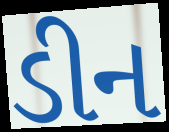
ડીન